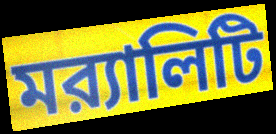
মর‍্যালিটি